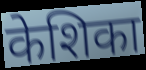
केशिका